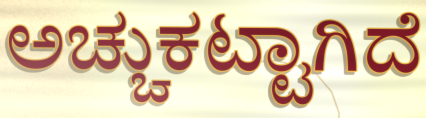
ಅಚ್ಚುಕಟ್ಟಾಗಿದೆ